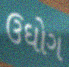
ઉઘોગ